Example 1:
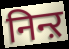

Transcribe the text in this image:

निन्ऱ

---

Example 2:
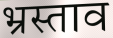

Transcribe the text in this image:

भ्रस्ताव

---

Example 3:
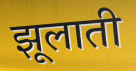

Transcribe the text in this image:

झूलाती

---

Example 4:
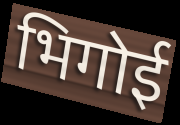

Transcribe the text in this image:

भिगोई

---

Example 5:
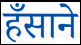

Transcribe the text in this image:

हँसाने